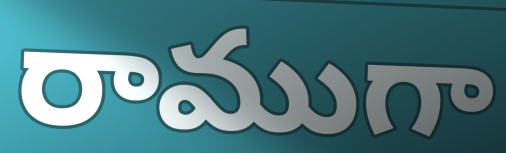
రాముగా